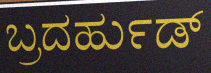
ಬ್ರದರ್ಹುಡ್